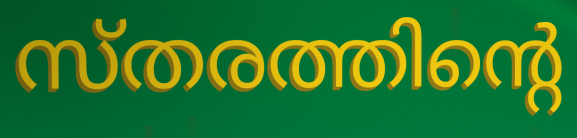
സ്തരത്തിന്റെ